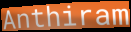
Anthiram